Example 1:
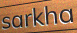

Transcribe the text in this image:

sarkha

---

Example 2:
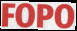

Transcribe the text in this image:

FOPO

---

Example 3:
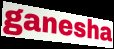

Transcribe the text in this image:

ganesha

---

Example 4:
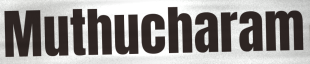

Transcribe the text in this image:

Muthucharam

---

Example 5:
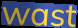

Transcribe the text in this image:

wast